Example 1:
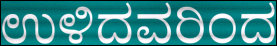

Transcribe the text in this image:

ಉಳಿದವರಿಂದ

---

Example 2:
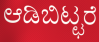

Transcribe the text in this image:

ಆಡಿಬಿಟ್ಟರೆ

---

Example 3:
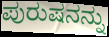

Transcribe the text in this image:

ಪುರುಷನನ್ನು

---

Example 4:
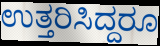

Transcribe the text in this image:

ಉತ್ತರಿಸಿದ್ದರೂ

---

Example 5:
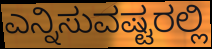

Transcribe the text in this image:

ಎನ್ನಿಸುವಷ್ಟರಲ್ಲಿ